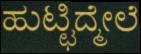
ಹುಟ್ಟಿದ್ಮೇಲೆ